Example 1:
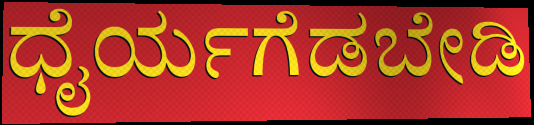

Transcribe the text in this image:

ಧೈರ್ಯಗೆಡಬೇಡಿ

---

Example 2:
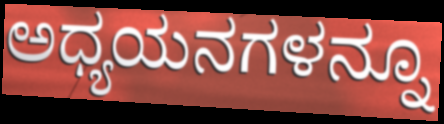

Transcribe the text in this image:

ಅಧ್ಯಯನಗಳನ್ನೂ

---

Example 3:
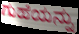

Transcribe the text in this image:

ಗುಹೆಯನ್ನು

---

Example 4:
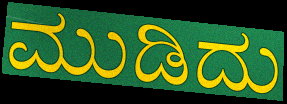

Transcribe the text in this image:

ಮುಡಿದು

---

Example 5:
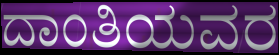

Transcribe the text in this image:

ದಾಂತಿಯವರ